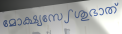
മോക്ഷ്യസേഽശുഭാത്